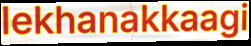
lekhanakkaagi